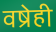
वष्रेही